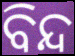
ବିନ୍ଦ